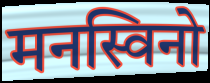
मनस्विनो